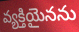
వ్యక్తియైనను